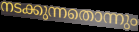
നടക്കുന്നതൊന്നും